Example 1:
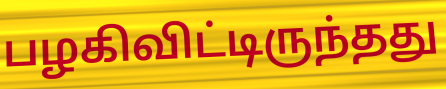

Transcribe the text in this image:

பழகிவிட்டிருந்தது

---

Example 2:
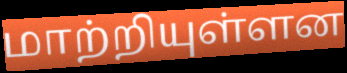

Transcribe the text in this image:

மாற்றியுள்ளன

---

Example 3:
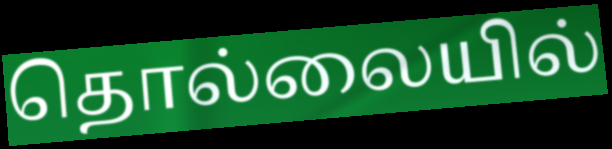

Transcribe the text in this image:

தொல்லையில்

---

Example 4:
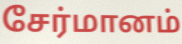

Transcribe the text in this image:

சேர்மானம்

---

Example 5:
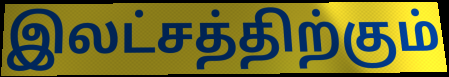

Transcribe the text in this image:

இலட்சத்திற்கும்